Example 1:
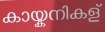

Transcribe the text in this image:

കായ്കനികള്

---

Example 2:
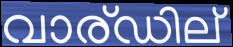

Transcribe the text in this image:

വാര്ഡില്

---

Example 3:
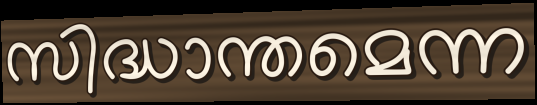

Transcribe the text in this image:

സിദ്ധാന്തമെന്ന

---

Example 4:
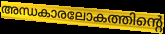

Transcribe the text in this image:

അന്ധകാരലോകത്തിന്റെ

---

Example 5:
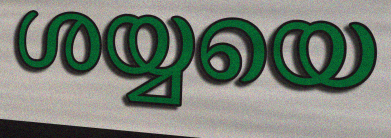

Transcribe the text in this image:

ശയ്യയെ